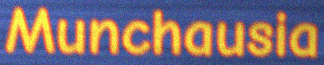
Munchausia